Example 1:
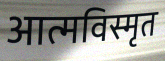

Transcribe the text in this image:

आत्मविस्मृत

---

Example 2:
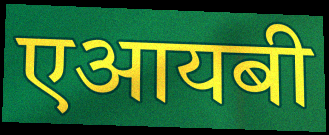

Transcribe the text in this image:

एआयबी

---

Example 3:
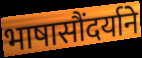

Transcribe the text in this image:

भाषासौंदर्याने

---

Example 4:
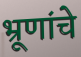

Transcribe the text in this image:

भ्रूणांचे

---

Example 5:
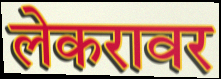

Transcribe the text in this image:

लेकरावर